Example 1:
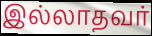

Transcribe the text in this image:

இல்லாதவர்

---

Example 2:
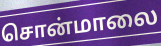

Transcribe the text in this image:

சொன்மாலை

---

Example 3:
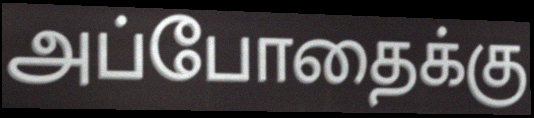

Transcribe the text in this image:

அப்போதைக்கு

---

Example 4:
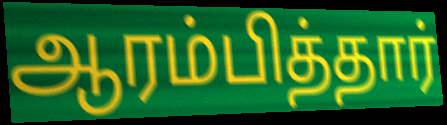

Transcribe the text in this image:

ஆரம்பித்தார்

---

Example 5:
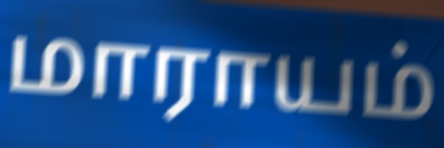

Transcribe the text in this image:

மாராயம்